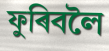
ফুৰিবলৈ